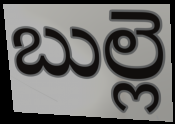
బుల్లె